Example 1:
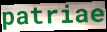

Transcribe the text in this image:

patriae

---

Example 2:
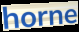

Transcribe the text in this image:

horne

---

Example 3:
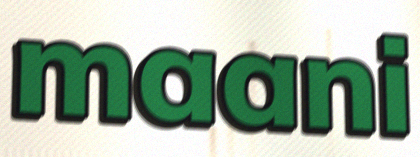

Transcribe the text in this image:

maani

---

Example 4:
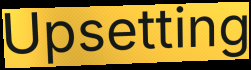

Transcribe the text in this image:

Upsetting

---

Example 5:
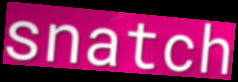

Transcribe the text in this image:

snatch